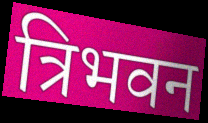
त्रिभवन